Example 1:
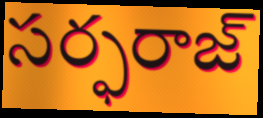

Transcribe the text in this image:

సర్ఫరాజ్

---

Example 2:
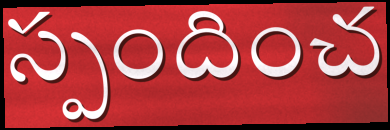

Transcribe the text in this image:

స్పందించ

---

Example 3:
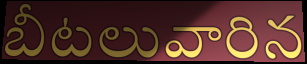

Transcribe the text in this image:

బీటలువారిన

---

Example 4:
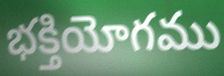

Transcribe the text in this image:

భక్తియోగము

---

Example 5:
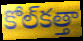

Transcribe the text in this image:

కోల్‌కత్తా